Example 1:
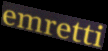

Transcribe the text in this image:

emretti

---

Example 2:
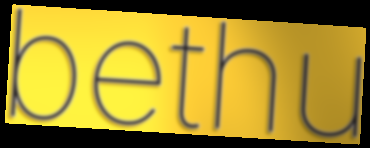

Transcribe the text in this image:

bethu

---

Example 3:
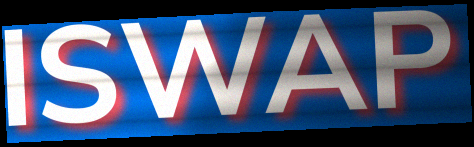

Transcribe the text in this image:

ISWAP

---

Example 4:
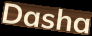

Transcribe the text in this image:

Dasha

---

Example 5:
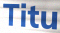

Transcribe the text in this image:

Titu